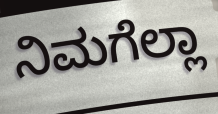
ನಿಮಗೆಲ್ಲಾ